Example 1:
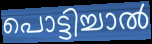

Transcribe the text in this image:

പൊട്ടിച്ചാൽ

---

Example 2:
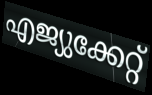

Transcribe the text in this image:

എജ്യുക്കേറ്റ്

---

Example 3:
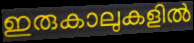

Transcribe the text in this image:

ഇരുകാലുകളിൽ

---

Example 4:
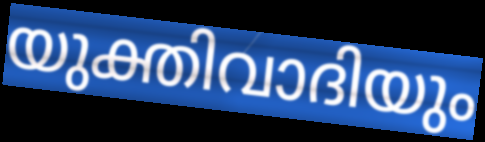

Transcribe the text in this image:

യുക്തിവാദിയും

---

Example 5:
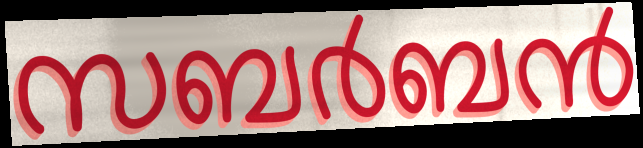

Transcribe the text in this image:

സബർബൻ